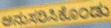
ಅನುಸರಿಸಿಕೊಂಡು